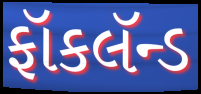
ફૉકલૅન્ડ